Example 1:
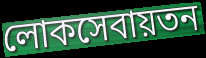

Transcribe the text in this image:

লোকসেবায়তন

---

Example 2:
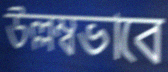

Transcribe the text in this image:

উল্লম্বভাবে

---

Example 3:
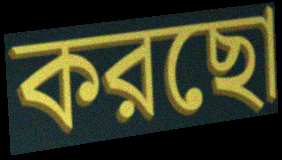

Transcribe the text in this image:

করছো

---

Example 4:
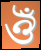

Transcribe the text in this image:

ঔঁ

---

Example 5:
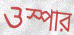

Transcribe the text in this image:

ওস্পার